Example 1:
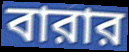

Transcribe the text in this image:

বারার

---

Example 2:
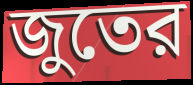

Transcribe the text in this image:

জুতের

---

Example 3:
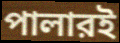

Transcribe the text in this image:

পালারই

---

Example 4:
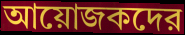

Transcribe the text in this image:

আয়োজকদের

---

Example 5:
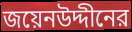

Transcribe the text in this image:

জয়েনউদ্দীনের